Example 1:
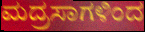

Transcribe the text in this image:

ಮದ್ರಸಾಗಳಿಂದ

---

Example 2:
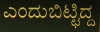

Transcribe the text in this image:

ಎಂದುಬಿಟ್ಟಿದ್ದ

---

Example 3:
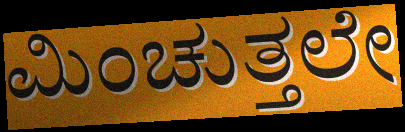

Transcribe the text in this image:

ಮಿಂಚುತ್ತಲೇ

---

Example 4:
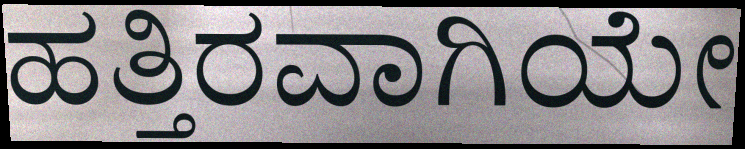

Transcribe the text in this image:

ಹತ್ತಿರವಾಗಿಯೇ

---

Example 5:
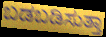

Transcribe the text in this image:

ಬಡಬಡಿಸುತ್ತಾ